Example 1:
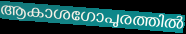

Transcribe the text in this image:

ആകാശഗോപുരത്തിൽ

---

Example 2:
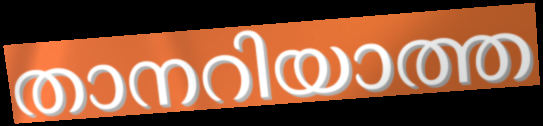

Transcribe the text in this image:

താനറിയാത്ത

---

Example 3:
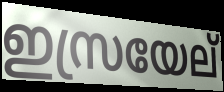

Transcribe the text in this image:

ഇസ്രയേല്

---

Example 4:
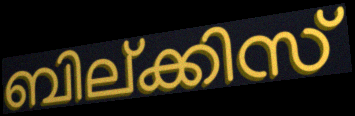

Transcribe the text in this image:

ബില്ക്കിസ്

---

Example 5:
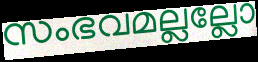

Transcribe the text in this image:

സംഭവമല്ലല്ലോ